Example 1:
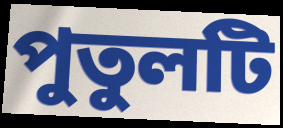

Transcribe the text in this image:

পুতুলটি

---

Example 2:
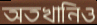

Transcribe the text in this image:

অতখানিও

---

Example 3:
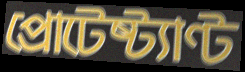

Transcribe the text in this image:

প্রোটেষ্ট্যাণ্ট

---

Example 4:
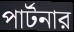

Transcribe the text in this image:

পার্টনার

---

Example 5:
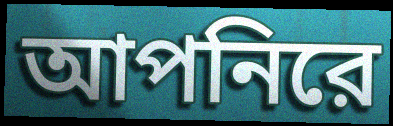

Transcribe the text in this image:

আপনিরে